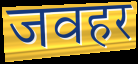
जवहर